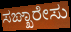
ಸಙ್ಖಾರೇಸು